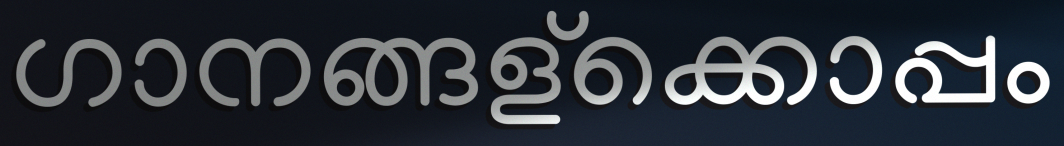
ഗാനങ്ങള്ക്കൊപ്പം